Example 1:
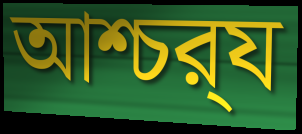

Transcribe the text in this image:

আশ্চর্‍য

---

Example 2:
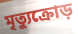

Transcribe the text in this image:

মৃত্যুক্রোড়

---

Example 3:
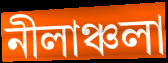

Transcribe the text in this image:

নীলাঞ্চলা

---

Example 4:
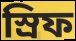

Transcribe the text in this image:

স্রিফ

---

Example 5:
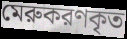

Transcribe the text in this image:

মেরুকরণকৃত